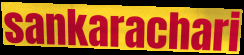
sankarachari